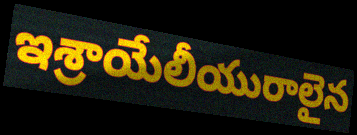
ఇశ్రాయేలీయురాలైన